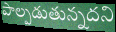
పాల్పడుతున్నదని